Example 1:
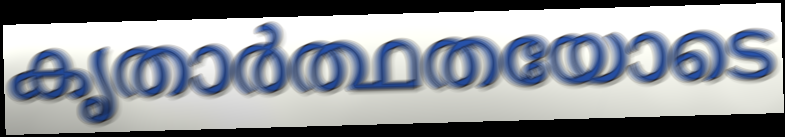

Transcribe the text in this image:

കൃതാർത്ഥതയോടെ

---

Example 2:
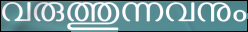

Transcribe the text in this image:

വരുത്തുന്നവനും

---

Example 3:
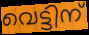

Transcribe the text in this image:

വെട്ടിന്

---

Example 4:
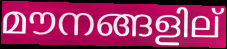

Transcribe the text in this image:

മൗനങ്ങളില്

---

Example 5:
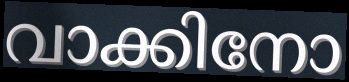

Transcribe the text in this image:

വാക്കിനോ